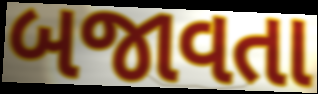
બજાવતા